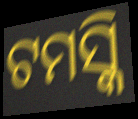
ଟମସ୍କି